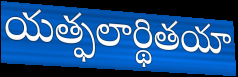
యత్ఫలార్థితయా